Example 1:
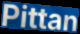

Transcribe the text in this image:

Pittan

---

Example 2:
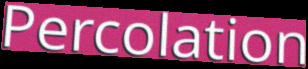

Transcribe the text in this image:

Percolation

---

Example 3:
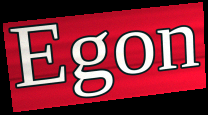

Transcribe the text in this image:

Egon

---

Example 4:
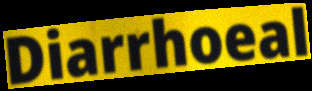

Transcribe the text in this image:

Diarrhoeal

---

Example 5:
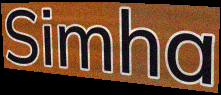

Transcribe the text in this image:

Simha